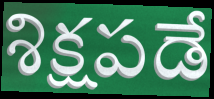
శిక్షపడే